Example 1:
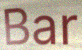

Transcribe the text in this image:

Bar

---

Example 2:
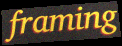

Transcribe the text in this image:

framing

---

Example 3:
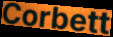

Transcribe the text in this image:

Corbett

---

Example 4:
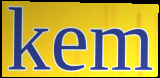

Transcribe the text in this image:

kem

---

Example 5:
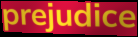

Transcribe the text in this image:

prejudice